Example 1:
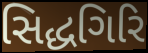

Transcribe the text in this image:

સિદ્ધગિરિ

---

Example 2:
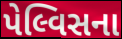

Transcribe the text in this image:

પેલ્વિસના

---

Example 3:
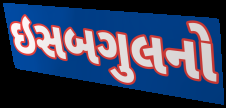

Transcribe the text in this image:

ઇસબગુલનો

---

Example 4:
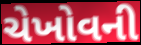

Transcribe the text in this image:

ચેખોવની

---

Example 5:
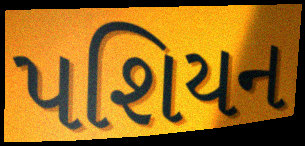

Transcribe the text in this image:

પશિયન